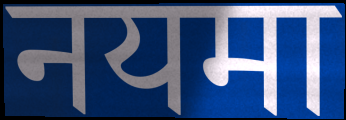
नयमा